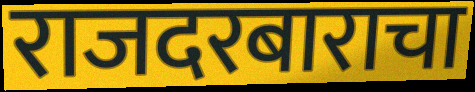
राजदरबाराचा